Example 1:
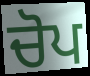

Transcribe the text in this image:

ਚੋਪ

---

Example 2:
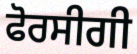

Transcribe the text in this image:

ਫੋਰਸੀਗੀ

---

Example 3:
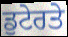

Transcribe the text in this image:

ਡੁਟੇਰਤੇ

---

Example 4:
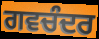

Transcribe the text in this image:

ਗਵਚੰਦਰ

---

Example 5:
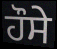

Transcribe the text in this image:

ਹੌਸੇ